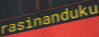
rasinanduku